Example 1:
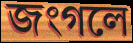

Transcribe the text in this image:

জংগলে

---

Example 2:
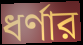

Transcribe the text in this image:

ধর্ণার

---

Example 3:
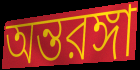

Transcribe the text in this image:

অন্তরঙ্গা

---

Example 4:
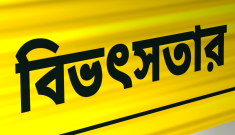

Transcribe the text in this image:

বিভৎসতার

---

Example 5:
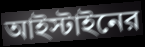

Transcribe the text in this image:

আইস্টাইনের